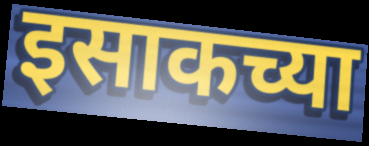
इसाकच्या